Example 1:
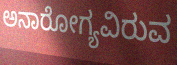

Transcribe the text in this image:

ಅನಾರೋಗ್ಯವಿರುವ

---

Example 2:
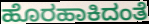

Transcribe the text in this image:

ಹೊರಹಾಕಿದಂತೆ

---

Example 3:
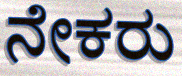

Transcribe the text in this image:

ನೇಕರು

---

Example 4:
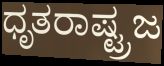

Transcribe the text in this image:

ಧೃತರಾಷ್ಟ್ರಜ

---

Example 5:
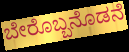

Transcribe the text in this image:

ಬೇರೊಬ್ಬನೊಡನೆ